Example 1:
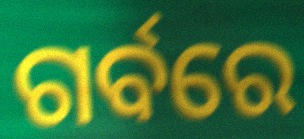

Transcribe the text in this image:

ଗର୍ବରେ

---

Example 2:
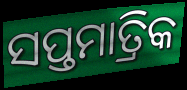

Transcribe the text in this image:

ସପ୍ତମାତ୍ରିକ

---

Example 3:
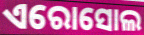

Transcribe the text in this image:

ଏରୋସୋଲ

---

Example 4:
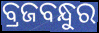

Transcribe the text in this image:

ବ୍ରଜବନ୍ଧୁର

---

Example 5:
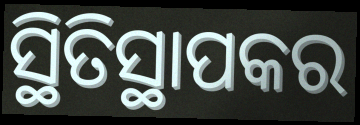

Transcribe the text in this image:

ସ୍ଥିତିସ୍ଥାପକର